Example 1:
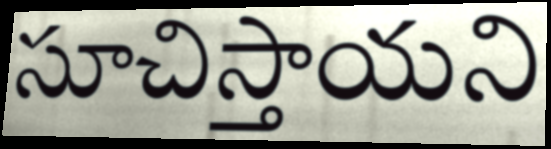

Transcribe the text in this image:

సూచిస్తాయని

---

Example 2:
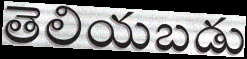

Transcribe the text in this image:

తెలియబడు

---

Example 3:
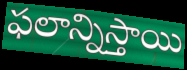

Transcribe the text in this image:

ఫలాన్నిస్తాయి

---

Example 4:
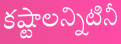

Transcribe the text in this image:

కష్టాలన్నిటినీ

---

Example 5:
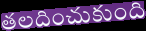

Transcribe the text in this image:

తలదించుకుంది